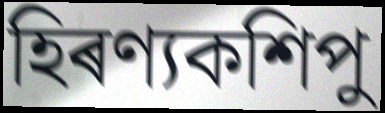
হিৰণ্যকশিপু